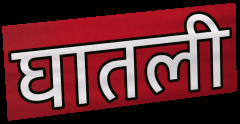
घातली